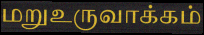
மறுஉருவாக்கம்